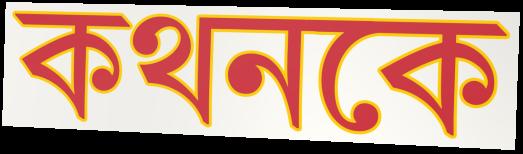
কথনকে